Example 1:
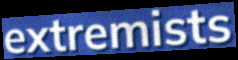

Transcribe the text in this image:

extremists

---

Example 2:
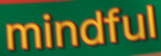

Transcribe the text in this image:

mindful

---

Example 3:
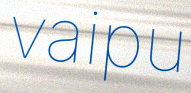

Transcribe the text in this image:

vaipu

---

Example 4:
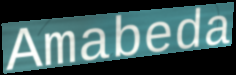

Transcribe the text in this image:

Amabeda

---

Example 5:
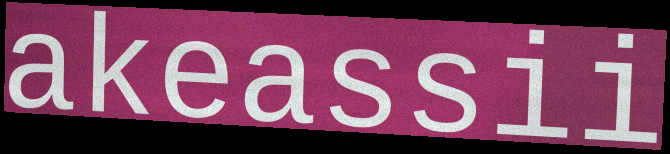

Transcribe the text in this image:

akeassii